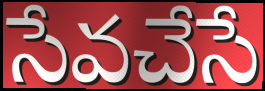
సేవచేసే